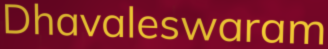
Dhavaleswaram